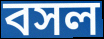
বসল